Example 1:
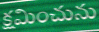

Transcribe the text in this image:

క్షమించును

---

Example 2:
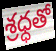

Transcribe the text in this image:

శ్రధ్ధతో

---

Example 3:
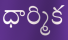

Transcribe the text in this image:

ధార్మిక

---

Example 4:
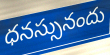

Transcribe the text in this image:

ధనస్సునందు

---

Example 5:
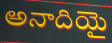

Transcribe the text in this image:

అనాదియై